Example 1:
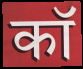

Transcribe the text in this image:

कॉ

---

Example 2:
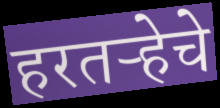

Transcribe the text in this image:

हरतऱ्हेचे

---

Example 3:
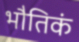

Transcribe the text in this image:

भौतिकं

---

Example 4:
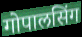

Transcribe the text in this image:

गोपालसिंग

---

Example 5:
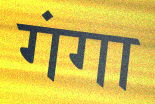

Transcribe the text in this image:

गंगा